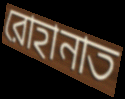
রোহানাত